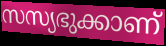
സസ്യഭുക്കാണ്